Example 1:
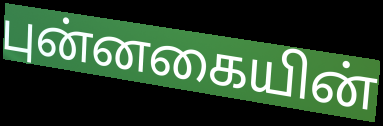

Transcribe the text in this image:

புன்னகையின்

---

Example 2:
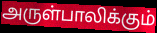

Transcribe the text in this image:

அருள்பாலிக்கும்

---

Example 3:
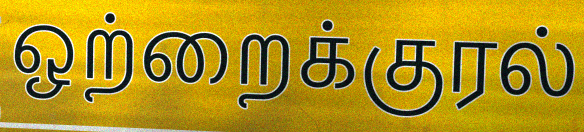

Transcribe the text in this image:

ஒற்றைக்குரல்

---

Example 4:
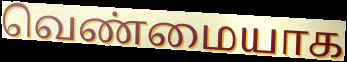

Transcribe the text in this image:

வெண்மையாக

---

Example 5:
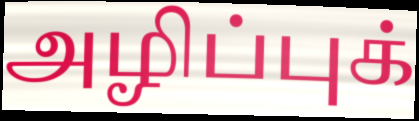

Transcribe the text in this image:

அழிப்புக்